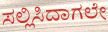
ಸಲ್ಲಿಸಿದಾಗಲೇ